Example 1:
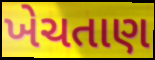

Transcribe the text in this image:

ખેચતાણ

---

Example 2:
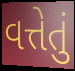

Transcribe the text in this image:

વત્તેતું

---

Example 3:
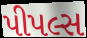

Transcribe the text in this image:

પીપલ્સ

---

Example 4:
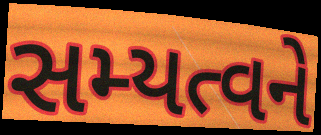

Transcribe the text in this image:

સમ્યત્વને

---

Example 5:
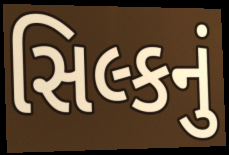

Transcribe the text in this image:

સિલ્કનું